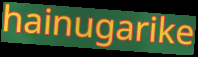
hainugarike